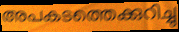
അപകടത്തെക്കുറിച്ചു